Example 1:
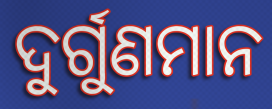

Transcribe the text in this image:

ଦୁର୍ଗୁଣମାନ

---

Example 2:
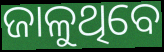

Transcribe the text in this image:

ଜାଳୁଥିବେ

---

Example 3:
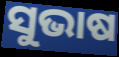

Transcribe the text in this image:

ସୁଭାଷ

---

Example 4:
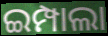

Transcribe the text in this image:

ଇମ୍ପାଲା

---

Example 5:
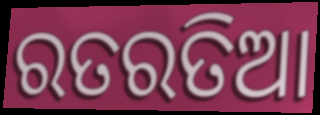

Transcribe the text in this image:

ରତରତିଆ